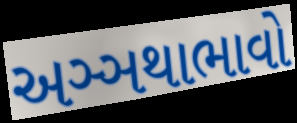
અઞ્ઞથાભાવો